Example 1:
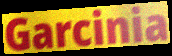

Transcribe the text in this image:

Garcinia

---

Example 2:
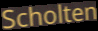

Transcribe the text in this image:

Scholten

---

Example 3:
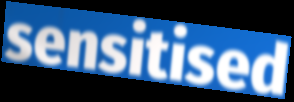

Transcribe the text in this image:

sensitised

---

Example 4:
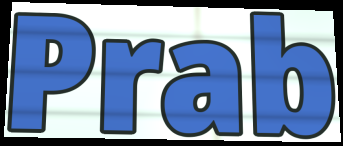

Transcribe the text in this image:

Prab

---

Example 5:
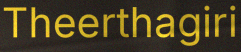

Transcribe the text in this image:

Theerthagiri